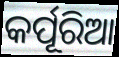
କର୍ପୂରିଆ